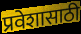
प्रवेशासाठी